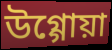
উগ্গোয়া